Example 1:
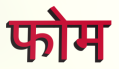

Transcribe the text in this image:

फोम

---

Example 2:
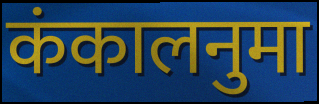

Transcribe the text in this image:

कंकालनुमा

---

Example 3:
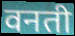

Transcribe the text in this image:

वनती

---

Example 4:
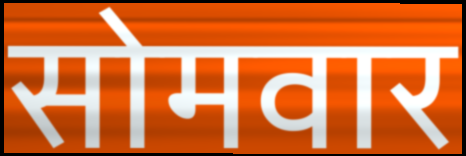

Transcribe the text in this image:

सोमवार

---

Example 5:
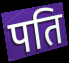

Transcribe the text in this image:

पति